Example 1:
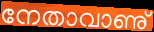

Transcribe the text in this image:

നേതാവാണു്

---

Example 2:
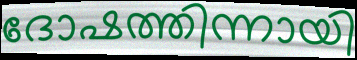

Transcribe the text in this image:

ദോഷത്തിന്നായി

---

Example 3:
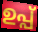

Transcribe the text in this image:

ഉപ്പ്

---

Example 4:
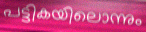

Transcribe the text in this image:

പട്ടികയിലൊന്നും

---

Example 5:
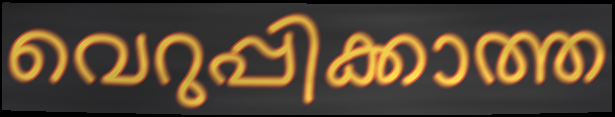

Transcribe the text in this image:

വെറുപ്പിക്കാത്ത